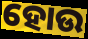
ହୋଉ